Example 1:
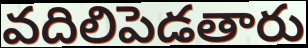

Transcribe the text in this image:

వదిలిపెడతారు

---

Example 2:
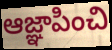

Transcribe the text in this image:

ఆజ్ఞాపించి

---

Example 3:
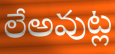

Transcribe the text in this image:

లేఅవుట్ల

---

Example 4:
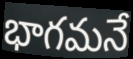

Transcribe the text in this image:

భాగమనే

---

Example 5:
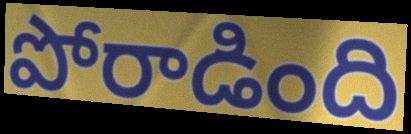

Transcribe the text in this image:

పోరాడింది